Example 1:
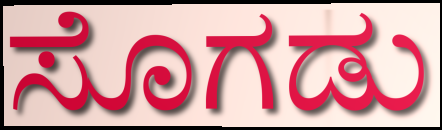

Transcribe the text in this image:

ಸೊಗಡು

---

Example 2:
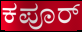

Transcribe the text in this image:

ಕಪೂರ್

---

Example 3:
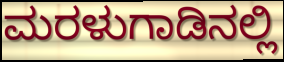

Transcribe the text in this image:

ಮರಳುಗಾಡಿನಲ್ಲಿ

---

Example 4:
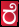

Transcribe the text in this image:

ರೆ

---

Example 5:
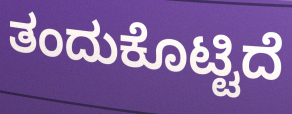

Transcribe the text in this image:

ತಂದುಕೊಟ್ಟಿದೆ